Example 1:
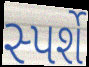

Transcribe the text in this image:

સ્પર્શે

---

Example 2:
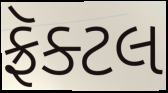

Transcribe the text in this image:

ફ્રૅક્ટલ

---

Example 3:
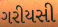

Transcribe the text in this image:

ગરીયસી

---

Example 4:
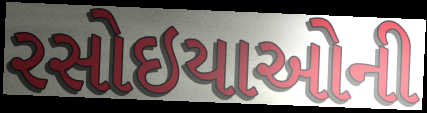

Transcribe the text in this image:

રસોઇયાઓની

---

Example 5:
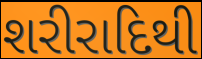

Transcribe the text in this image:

શરીરાદિથી